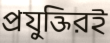
প্রযুক্তিরই